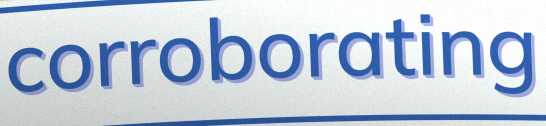
corroborating